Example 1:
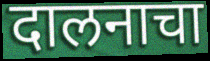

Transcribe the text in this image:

दालनाचा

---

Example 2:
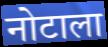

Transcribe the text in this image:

नोटाला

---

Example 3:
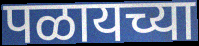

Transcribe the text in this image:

पळायच्या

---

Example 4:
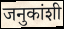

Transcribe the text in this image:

जनुकांशी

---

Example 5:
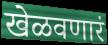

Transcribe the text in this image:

खेळवणारं